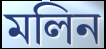
মলিন